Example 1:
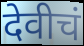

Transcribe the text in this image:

देवीचं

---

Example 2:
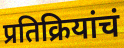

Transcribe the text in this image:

प्रतिक्रियांचं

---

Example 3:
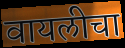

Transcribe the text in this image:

वायलीचा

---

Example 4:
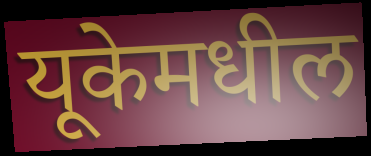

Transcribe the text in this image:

यूकेमधील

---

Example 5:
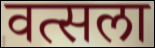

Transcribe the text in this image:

वत्सला